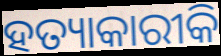
ହତ୍ୟାକାରୀକି